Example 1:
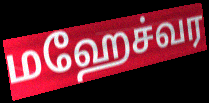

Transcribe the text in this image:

மஹேச்வர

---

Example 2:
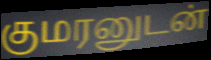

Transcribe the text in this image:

குமரனுடன்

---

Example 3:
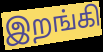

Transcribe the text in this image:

இறங்கி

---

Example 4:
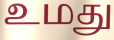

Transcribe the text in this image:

உமது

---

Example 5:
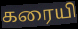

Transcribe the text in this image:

கரையி